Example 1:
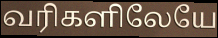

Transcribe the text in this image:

வரிகளிலேயே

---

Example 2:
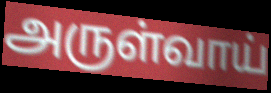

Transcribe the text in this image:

அருள்வாய்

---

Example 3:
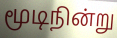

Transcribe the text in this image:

மூடிநின்று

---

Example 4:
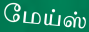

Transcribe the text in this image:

மேய்ஸ்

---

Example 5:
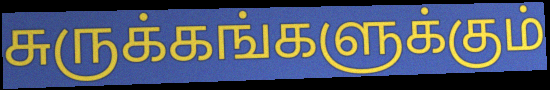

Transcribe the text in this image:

சுருக்கங்களுக்கும்